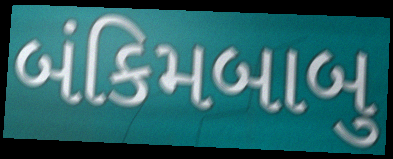
બંકિમબાબુ